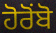
ਹੋਰੋਂਬੋ